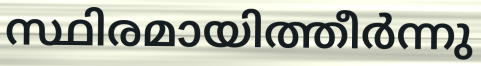
സ്ഥിരമായിത്തീർന്നു